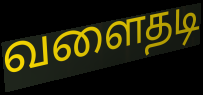
வளைதடி